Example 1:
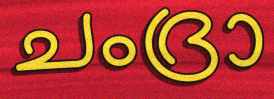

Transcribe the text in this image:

ചംദ്രാ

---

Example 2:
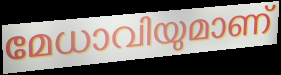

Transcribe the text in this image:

മേധാവിയുമാണ്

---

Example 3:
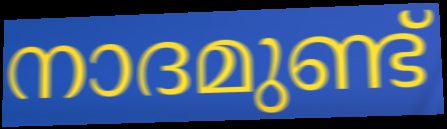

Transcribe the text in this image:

നാദമുണ്ട്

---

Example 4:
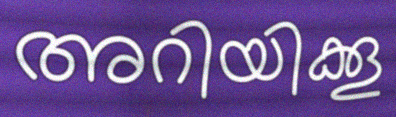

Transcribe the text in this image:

അറിയിക്കൂ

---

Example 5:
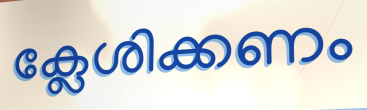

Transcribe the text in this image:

ക്ലേശിക്കണം